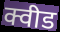
क्वीड